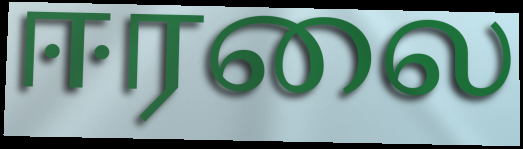
ஈரலை